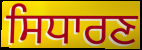
ਸਿਧਾਰਣ